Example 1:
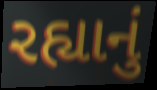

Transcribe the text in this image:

રહ્યાનું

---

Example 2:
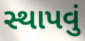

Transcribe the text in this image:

સ્થાપવું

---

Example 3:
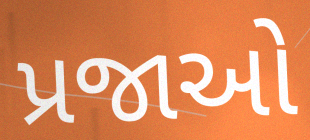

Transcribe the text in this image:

પ્રજાઓ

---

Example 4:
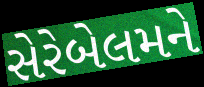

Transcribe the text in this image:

સેરેબેલમને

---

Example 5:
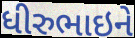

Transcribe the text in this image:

ધીરુભાઇને